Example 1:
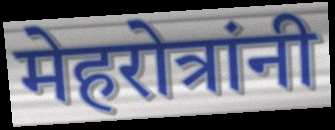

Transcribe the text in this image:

मेहरोत्रांनी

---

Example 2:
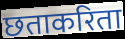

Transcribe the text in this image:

छताकरिता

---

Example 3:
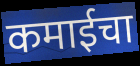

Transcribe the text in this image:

कमाईचा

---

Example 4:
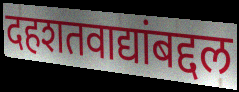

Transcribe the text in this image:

दहशतवाद्यांबद्दल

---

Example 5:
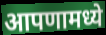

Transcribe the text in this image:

आपणामध्ये